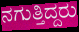
ನಗುತ್ತಿದ್ದರು